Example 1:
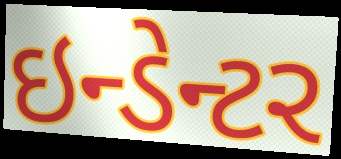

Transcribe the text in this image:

ઇન્ડેન્ટર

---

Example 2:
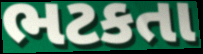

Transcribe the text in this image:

ભટકતા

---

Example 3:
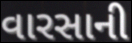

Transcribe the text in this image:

વારસાની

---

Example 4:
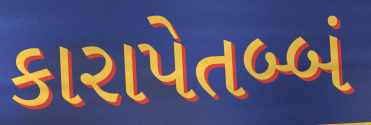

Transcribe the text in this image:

કારાપેતબ્બં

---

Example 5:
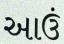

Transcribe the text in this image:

આઉં